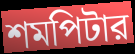
শমপিটার